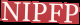
NIPFP